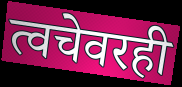
त्वचेवरही